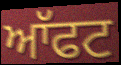
ਆੱਫਟ